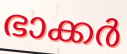
ഭാക്കർ